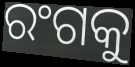
ରଂଗକୁ